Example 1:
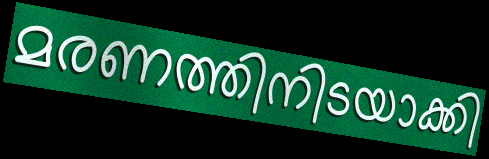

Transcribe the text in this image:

മരണത്തിനിടയാക്കി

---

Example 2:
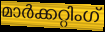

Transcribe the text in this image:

മാർക്കറ്റിംഗ്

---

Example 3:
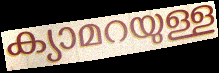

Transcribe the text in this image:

ക്യാമറയുള്ള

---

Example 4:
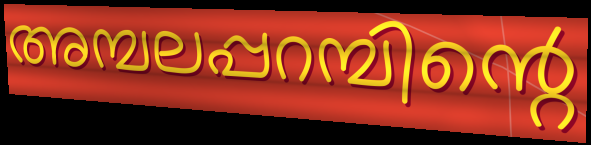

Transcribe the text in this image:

അമ്പലപ്പറമ്പിന്റെ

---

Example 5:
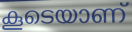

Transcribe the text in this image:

കൂടെയാണ്